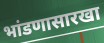
भांडणासारखा